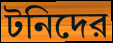
টনিদের